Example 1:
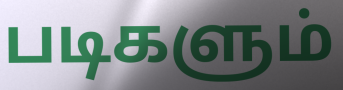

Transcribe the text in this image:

படிகளும்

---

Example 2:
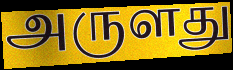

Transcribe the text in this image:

அருளது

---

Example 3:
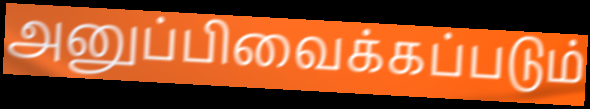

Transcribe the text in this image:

அனுப்பிவைக்கப்படும்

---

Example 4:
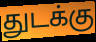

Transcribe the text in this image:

துடக்கு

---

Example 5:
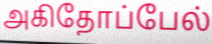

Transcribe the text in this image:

அகிதோப்பேல்